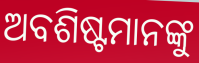
ଅବଶିଷ୍ଟମାନଙ୍କୁ